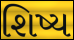
શિષ્ય